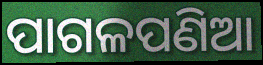
ପାଗଳପଣିଆ